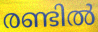
രണ്ടിൽ